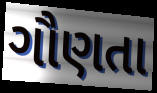
ગૌણતા